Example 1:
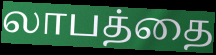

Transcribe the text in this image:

லாபத்தை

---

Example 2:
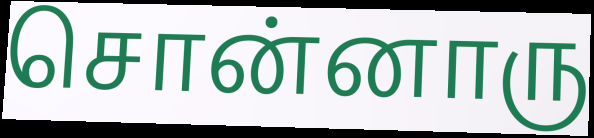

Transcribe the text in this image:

சொன்னாரு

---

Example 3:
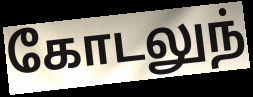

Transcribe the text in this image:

கோடலுந்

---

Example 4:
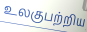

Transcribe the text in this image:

உலகுபற்றிய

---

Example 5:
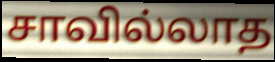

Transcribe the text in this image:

சாவில்லாத